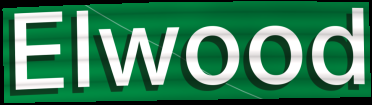
Elwood